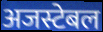
अजस्टेबल